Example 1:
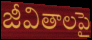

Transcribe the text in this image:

జీవితాలపై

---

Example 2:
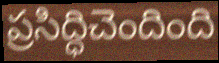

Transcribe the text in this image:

ప్రసిద్ధిచెందింది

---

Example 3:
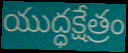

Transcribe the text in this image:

యుద్ధక్షేత్రం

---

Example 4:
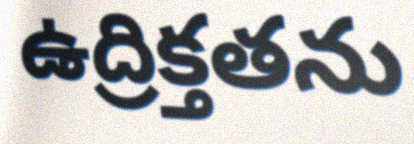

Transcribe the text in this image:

ఉద్రిక్తతను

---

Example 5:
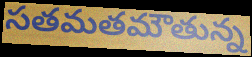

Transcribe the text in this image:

సతమతమౌతున్న